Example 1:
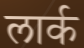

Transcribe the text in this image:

लार्क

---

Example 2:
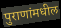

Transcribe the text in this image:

पुराणांमधील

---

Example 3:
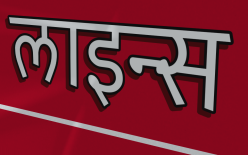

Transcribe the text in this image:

लाइन्स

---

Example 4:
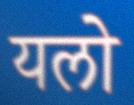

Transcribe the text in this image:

यलो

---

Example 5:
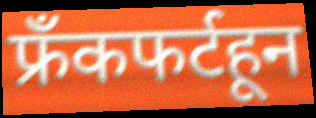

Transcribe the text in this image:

फ्रँकफर्टहून